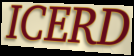
ICERD